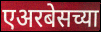
एअरबेसच्या